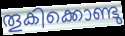
തൂകിക്കൊണ്ടു